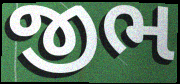
જીભ